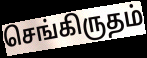
செங்கிருதம்